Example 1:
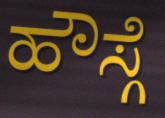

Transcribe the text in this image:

ಹೌಸ್ಗೆ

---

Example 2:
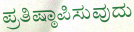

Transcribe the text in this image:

ಪ್ರತಿಷ್ಠಾಪಿಸುವುದು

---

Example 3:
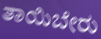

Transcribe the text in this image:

ತಾಯಿಬೇರು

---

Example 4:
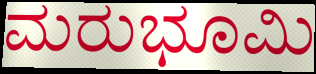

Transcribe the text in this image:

ಮರುಭೂಮಿ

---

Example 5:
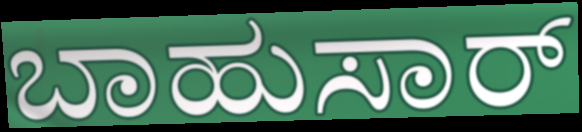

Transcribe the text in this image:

ಬಾಹುಸಾರ್